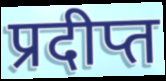
प्रदीप्त